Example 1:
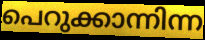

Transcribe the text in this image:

പെറുക്കാന്നിന്ന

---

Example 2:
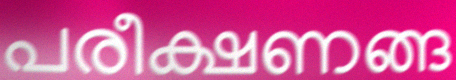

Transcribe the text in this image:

പരീക്ഷണങ്ങ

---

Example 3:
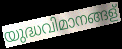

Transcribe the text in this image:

യുദ്ധവിമാനങ്ങള്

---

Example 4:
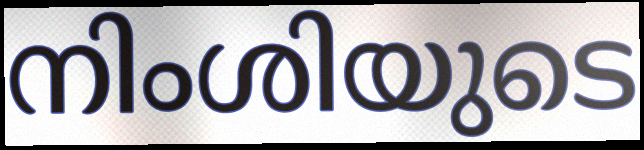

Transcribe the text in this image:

നിംശിയുടെ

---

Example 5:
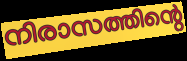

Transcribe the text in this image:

നിരാസത്തിന്റെ